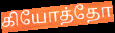
கியோத்தோ